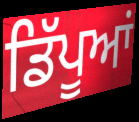
ਡਿੱਪੂਆਂ